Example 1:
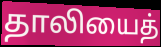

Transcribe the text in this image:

தாலியைத்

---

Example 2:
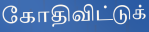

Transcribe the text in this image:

கோதிவிட்டுக்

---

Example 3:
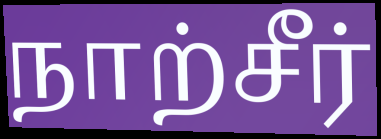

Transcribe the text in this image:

நாற்சீர்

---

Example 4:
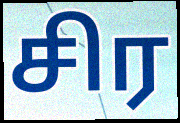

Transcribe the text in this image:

சிர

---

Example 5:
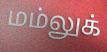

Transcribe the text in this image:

மம்லுக்